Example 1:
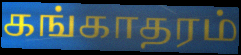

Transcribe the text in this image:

கங்காதரம்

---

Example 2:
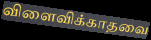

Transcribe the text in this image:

விளைவிக்காதவை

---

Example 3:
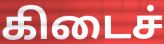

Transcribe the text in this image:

கிடைச்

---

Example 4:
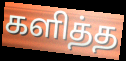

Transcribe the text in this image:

களித்த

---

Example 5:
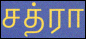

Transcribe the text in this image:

சத்ரா